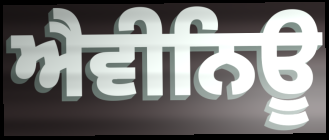
ਐਵੀਨਿਊ